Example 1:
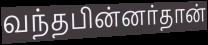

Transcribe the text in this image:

வந்தபின்னர்தான்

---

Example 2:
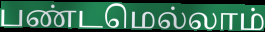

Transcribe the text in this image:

பண்டமெல்லாம்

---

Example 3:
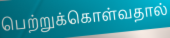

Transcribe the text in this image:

பெற்றுக்கொள்வதால்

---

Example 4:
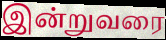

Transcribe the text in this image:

இன்றுவரை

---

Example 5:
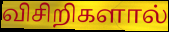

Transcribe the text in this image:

விசிறிகளால்